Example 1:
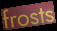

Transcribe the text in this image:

frosts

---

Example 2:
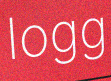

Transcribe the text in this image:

logg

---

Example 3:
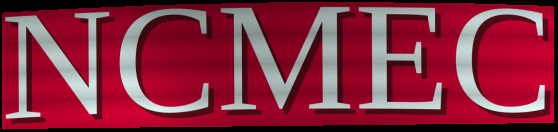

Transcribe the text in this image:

NCMEC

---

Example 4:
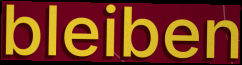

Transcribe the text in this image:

bleiben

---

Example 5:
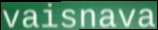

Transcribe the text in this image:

vaisnava